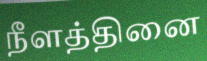
நீளத்தினை